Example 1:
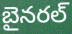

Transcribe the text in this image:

బైనరల్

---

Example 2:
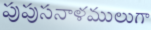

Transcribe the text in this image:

పుపుసనాళములుగా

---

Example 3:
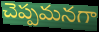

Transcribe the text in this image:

చెప్పమనగా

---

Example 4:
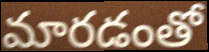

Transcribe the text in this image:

మారడంతో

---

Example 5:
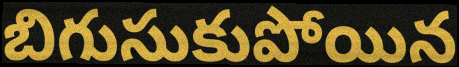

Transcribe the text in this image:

బిగుసుకుపోయిన